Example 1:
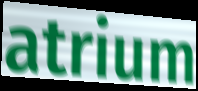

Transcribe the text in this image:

atrium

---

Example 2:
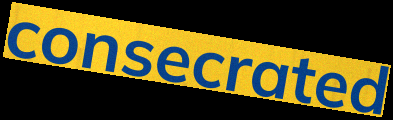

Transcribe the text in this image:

consecrated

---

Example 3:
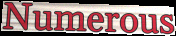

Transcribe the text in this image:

Numerous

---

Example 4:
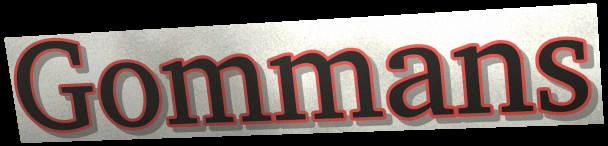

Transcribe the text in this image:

Gommans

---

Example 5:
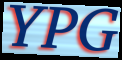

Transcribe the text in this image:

YPG